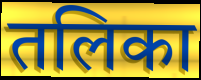
तलिका